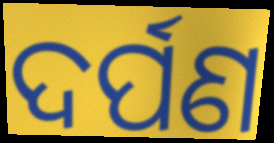
ଦର୍ପଣ